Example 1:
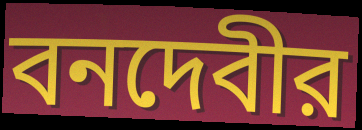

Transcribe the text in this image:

বনদেবীর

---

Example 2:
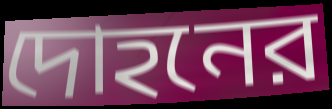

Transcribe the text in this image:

দোহনের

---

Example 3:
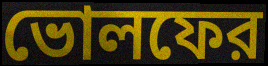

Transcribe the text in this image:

ভোলফের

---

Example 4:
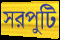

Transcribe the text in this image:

সরপুটি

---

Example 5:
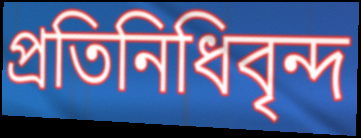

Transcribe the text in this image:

প্রতিনিধিবৃন্দ